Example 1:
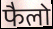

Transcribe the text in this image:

फैलो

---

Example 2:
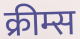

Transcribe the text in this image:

क्रीम्‍स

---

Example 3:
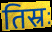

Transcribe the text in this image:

तिस्रः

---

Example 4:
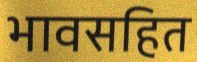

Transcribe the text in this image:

भावसहित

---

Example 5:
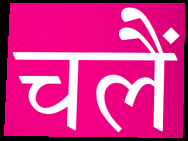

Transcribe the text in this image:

चलैं